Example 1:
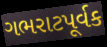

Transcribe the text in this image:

ગભરાટપૂર્વક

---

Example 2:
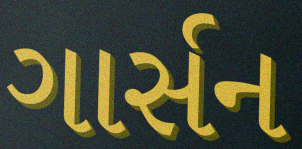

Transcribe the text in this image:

ગાર્સન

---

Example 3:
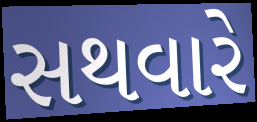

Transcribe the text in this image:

સથવારે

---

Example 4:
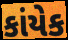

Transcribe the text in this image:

કાંયેક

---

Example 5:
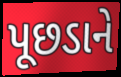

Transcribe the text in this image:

પૂછડાને